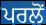
ਪਰਲੋਂ